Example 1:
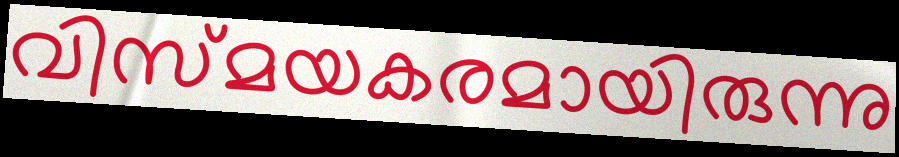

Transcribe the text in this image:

വിസ്മയകരമായിരുന്നു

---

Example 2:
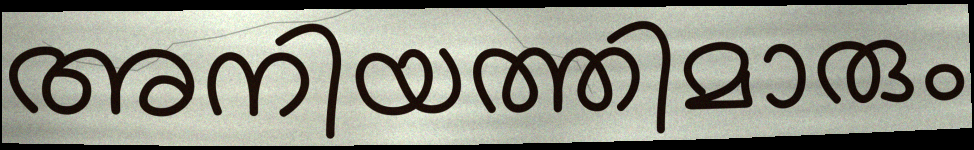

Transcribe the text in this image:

അനിയത്തിമാരും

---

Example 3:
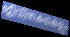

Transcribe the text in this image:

ജീവിതകഥകളും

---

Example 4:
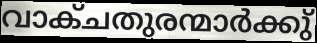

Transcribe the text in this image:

വാക്ചതുരന്മാർക്കു്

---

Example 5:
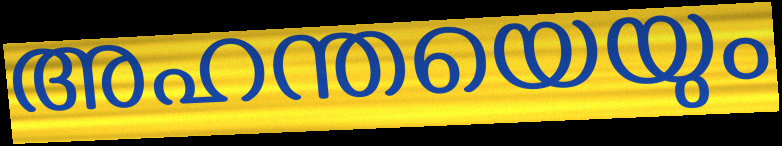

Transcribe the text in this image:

അഹന്തയെയും